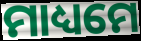
ମାଧ୍ୟମେ